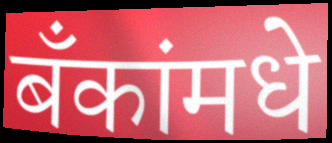
बँकांमधे